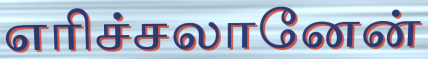
எரிச்சலானேன்